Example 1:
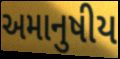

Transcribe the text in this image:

અમાનુષીય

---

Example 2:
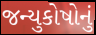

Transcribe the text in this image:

જન્યુકોષોનું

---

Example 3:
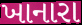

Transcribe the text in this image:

ખાનારા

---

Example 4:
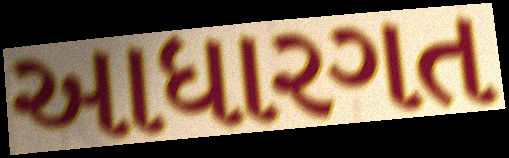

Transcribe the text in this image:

આધારગત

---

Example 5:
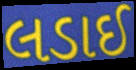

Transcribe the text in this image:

લડાઈ